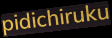
pidichiruku